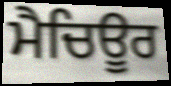
ਮੈਚਿਊਰ